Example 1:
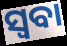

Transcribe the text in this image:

ସ୍ୱବା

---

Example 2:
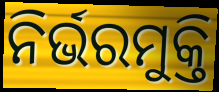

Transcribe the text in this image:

ନିର୍ଭରମୁକ୍ତି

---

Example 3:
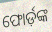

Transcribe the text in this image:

ଫୋର୍ଡ଼ଙ୍କ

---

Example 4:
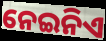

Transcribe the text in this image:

ନେଇନିଏ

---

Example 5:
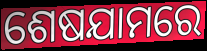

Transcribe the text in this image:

ଶେଷଯାମରେ